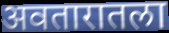
अवतारातला